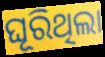
ଘୂରିଥିଲା